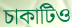
চাকাটিও